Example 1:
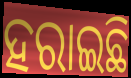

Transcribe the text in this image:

ହରାଇଛି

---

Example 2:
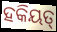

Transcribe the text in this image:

ହକିୟତ୍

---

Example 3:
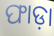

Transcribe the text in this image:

ଫାଡ଼ା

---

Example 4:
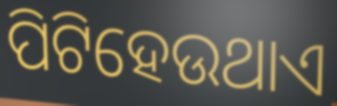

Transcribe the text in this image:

ପିଟିହେଉଥାଏ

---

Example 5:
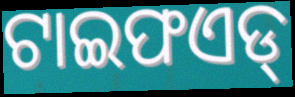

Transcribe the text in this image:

ଟାଇଫଏଡ୍